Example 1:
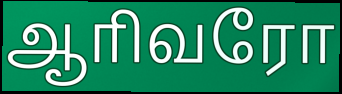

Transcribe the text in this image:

ஆரிவரோ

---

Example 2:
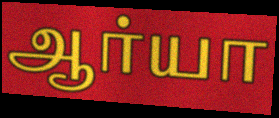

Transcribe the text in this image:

ஆர்யா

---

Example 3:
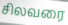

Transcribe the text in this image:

சிலவரை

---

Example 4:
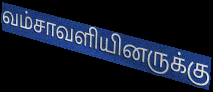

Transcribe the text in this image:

வம்சாவளியினருக்கு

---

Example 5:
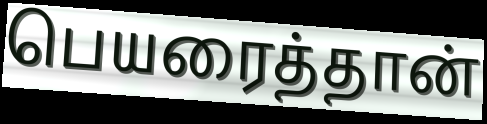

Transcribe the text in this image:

பெயரைத்தான்